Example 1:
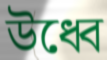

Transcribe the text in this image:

উধ্বে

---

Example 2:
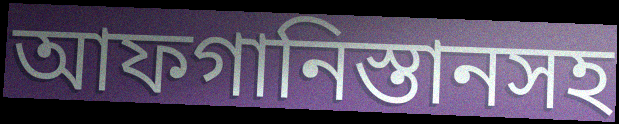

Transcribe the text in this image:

আফগানিস্তানসহ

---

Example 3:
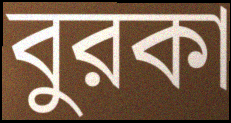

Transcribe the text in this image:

বুরকা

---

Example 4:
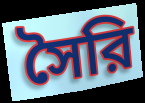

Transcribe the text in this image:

সৈরি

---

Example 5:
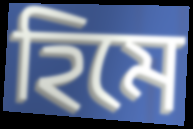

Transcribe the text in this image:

হিমে